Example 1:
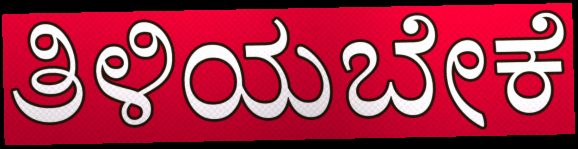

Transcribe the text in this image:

ತಿಳಿಯಬೇಕೆ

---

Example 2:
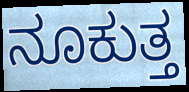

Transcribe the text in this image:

ನೂಕುತ್ತ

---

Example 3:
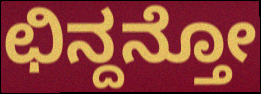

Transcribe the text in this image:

ಛಿನ್ದನ್ತೋ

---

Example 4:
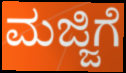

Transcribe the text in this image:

ಮಜ್ಜಿಗೆ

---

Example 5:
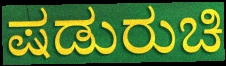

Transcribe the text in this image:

ಷಡುರುಚಿ